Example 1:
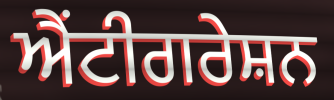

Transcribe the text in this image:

ਐਂਟੀਗਰੇਸ਼ਨ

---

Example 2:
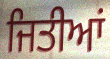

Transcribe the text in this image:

ਜਿਤੀਆਂ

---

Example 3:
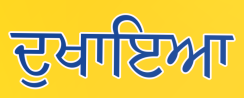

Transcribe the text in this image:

ਦੁਖਾਇਆ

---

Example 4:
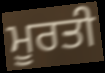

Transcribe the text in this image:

ਮੂਰਤੀ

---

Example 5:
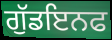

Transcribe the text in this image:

ਗੁੱਡਇਨਫ